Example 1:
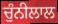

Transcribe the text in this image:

ਚੁੰਨੀਲਾਲ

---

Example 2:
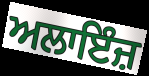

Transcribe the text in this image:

ਅਲਾਇੰਜ਼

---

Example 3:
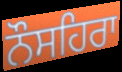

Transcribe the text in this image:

ਨੌਸਹਿਰਾ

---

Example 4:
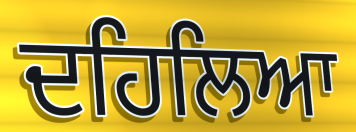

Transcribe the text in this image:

ਦਹਿਲਿਆ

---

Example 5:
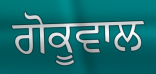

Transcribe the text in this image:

ਗੋਕੂਵਾਲ